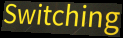
Switching